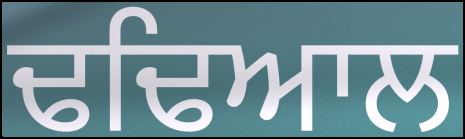
ਢਢਿਆਲ